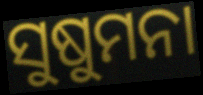
ସୁଷୁମନା